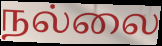
நல்லை